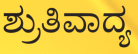
ಶ್ರುತಿವಾದ್ಯ